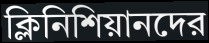
ক্লিনিশিয়ানদের